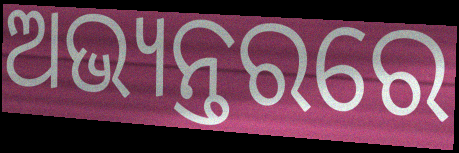
ଅଭ୍ୟନ୍ତରରେ